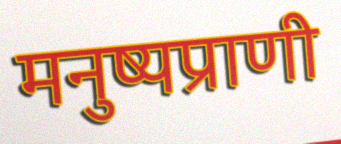
मनुष्यप्राणी